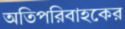
অতিপরিবাহকের